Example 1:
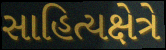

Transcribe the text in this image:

સાહિત્યક્ષેત્રે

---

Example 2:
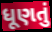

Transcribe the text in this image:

ધૂણતું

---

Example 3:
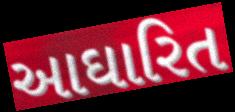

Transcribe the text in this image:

આઘારિત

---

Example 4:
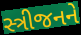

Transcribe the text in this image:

સ્ત્રીજનને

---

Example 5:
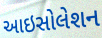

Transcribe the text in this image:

આઇસોલેશન